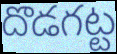
దొడగట్ట